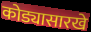
कोड्यासारखे